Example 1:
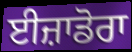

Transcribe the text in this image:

ਈਜ਼ਾਡੋਰਾ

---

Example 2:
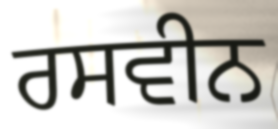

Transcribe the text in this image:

ਰਸਵੀਨ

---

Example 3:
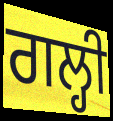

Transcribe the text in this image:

ਗਲ੍ਹੀ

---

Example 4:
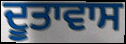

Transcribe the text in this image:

ਦੂਤਾਵਾਸ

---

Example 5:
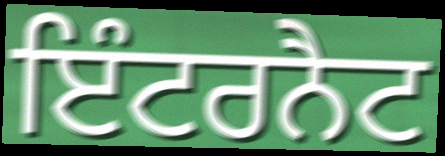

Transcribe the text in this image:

ਇੰਟਰਨੈਟ